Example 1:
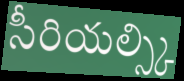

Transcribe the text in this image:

సీరియల్స్కి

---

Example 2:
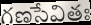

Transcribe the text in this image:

గణసేవితః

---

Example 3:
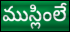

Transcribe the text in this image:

ముస్లింలే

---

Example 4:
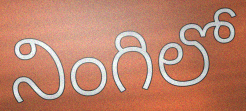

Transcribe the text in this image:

నింగిలో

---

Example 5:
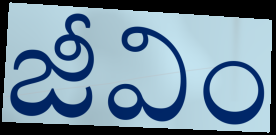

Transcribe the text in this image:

జీవిం